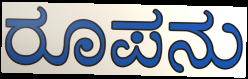
ರೂಪನು